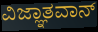
ವಿಜ್ಞಾತವಾನ್